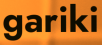
gariki